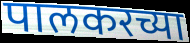
पालकरच्या